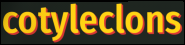
cotyleclons